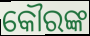
କୌରଙ୍କ